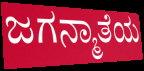
ಜಗನ್ಮಾತೆಯ